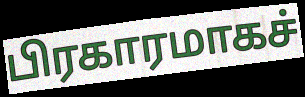
பிரகாரமாகச்